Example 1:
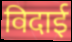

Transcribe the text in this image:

विदाई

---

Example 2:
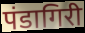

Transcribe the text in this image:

पंडागिरी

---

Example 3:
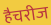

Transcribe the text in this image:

हैचरीज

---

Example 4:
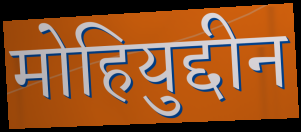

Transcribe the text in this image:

मोहियुद्दीन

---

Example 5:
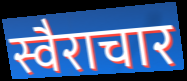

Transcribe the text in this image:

स्वैराचार